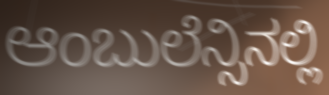
ಆಂಬುಲೆನ್ಸಿನಲ್ಲಿ